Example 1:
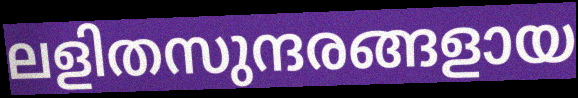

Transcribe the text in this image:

ലളിതസുന്ദരങ്ങളായ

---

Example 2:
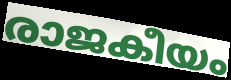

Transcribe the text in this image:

രാജകീയം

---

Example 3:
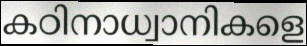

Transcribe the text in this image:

കഠിനാധ്വാനികളെ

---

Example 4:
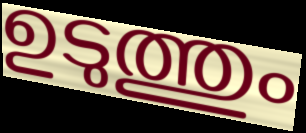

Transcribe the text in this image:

ഉടുത്തും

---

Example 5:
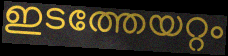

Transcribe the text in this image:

ഇടത്തേയറ്റം